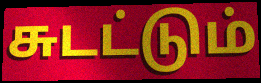
சுடட்டும்